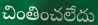
చింతించలేదు